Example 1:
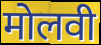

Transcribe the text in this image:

मोलवी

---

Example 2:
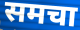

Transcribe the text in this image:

समचा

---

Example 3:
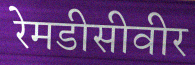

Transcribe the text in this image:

रेमडीसीवीर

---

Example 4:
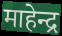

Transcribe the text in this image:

माहेन्द्र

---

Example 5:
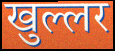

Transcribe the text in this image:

खुल्लर